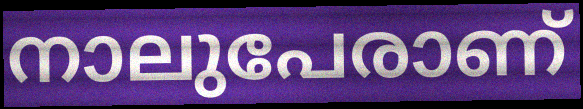
നാലുപേരാണ്